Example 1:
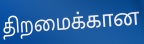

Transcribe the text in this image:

திறமைக்கான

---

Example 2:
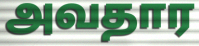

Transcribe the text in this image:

அவதார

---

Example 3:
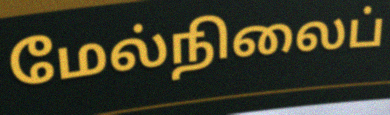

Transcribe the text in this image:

மேல்நிலைப்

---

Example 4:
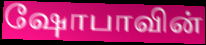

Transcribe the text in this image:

ஷோபாவின்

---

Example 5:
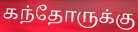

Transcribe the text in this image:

கந்தோருக்கு